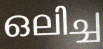
ഒലിച്ച